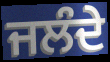
ਜਲੰਦੇ